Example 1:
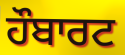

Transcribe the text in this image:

ਹੌਬਾਰਟ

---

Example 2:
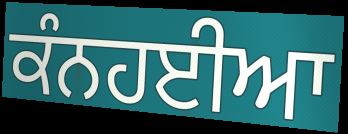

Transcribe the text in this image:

ਕੰਨਹਈਆ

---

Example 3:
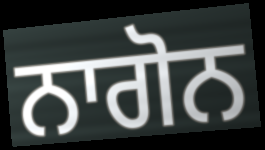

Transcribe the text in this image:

ਨਾਗੋਨ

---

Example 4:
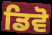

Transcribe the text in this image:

ਡਿਵੋ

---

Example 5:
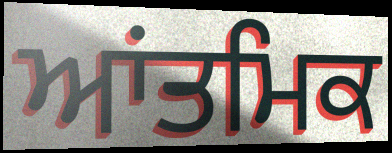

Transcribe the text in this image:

ਆਂਤਮਿਕ